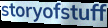
storyofstuff